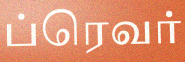
ப்ரெவர்